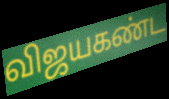
விஜயகண்ட